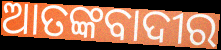
ଆତଙ୍କବାଦୀର